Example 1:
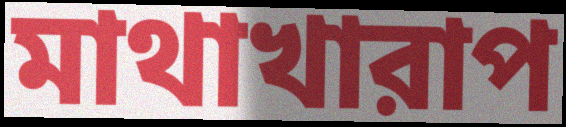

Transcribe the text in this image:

মাথাখারাপ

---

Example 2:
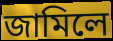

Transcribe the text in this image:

জামিলে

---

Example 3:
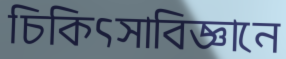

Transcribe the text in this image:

চিকিৎসাবিজ্ঞানে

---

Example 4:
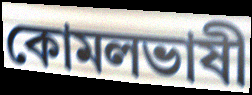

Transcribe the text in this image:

কোমলভাষী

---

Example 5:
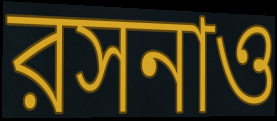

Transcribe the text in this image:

রসনাও